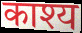
काश्य